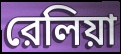
রেলিয়া